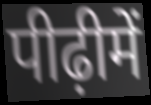
पीढ़ीमें